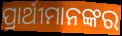
ପ୍ରାର୍ଥୀମାନଙ୍କର